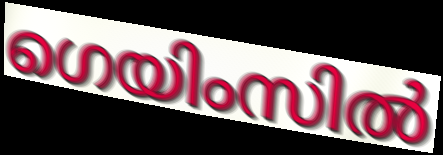
ഗെയിംസിൽ